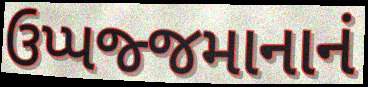
ઉપ્પજ્જમાનાનં